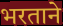
भरताने